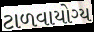
ટાળવાયોગ્ય